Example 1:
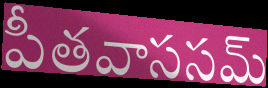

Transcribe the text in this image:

పీతవాససమ్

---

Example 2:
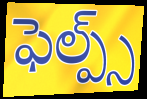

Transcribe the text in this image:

ఫెల్ప్స్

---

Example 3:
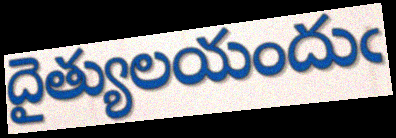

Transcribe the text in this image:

దైత్యులయందుఁ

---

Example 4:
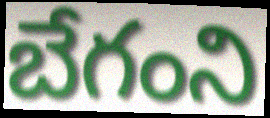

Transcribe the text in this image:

బేగంని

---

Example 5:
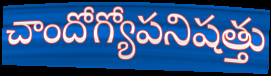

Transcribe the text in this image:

చాందోగ్యోపనిషత్తు